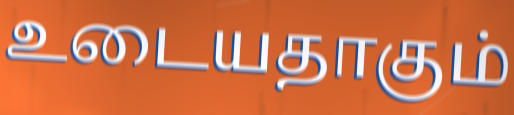
உடையதாகும்